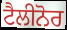
ਟੈਲੀਨੋਰ